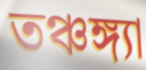
তঞ্চঙ্গ্যা